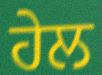
ਹੇਲ